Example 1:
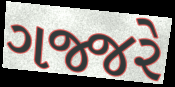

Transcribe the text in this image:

ગજ્જરે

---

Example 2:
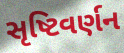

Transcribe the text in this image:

સૃષ્ટિવર્ણન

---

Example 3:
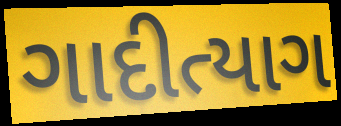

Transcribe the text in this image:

ગાદીત્યાગ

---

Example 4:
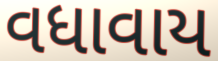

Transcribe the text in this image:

વધાવાય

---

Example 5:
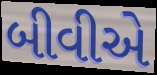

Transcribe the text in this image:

બીવીએ